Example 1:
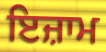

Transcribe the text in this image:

ਇਜ਼ਾਮ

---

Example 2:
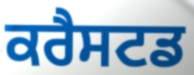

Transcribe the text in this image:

ਕਰੈਸਟਡ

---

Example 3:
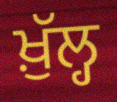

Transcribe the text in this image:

ਖ਼ੁੱਲ੍ਹ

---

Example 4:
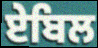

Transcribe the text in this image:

ਏਬਿਲ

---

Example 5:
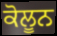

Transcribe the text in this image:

ਕੋਲੂਨ